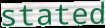
stated